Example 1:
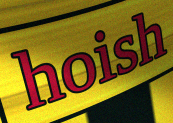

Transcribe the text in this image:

hoish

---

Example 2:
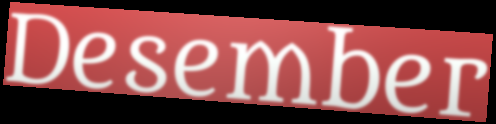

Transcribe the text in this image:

Desember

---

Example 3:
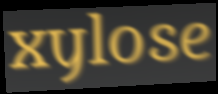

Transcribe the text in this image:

xylose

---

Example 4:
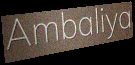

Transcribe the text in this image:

Ambaliya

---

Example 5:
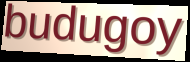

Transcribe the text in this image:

budugoy